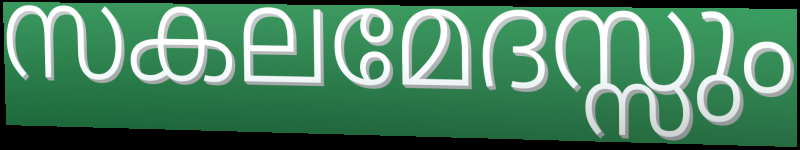
സകലമേദസ്സും